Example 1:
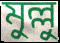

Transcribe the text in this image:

মুল্লু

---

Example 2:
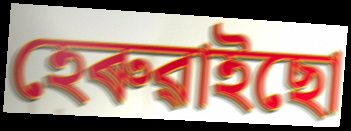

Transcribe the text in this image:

হেৰুৱাইছো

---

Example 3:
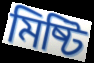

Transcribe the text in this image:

মিষ্টি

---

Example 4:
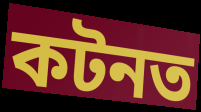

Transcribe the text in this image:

কটনত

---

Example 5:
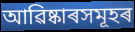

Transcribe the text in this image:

আৱিষ্কাৰসমূহৰ